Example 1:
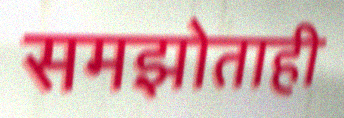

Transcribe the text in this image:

समझोताही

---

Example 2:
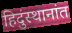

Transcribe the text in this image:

हिदुंस्थानांत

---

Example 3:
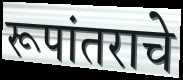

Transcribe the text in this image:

रूपांतराचे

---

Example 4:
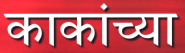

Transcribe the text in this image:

काकांच्या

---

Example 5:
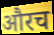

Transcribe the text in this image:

औरच